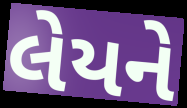
લેયને